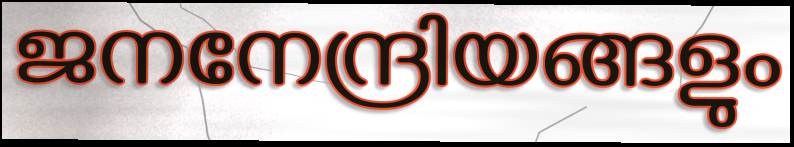
ജനനേന്ദ്രിയങ്ങളും